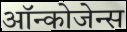
ऑन्कोजेन्स